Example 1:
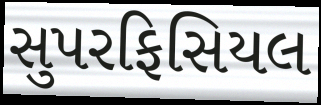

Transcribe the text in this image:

સુપરફિસિયલ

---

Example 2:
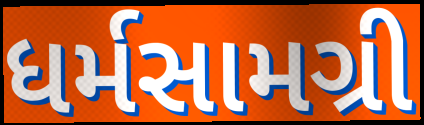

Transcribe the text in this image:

ધર્મસામગ્રી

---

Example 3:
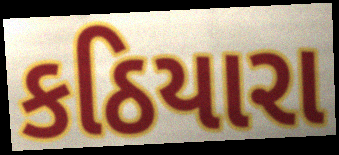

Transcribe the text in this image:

કઠિયારા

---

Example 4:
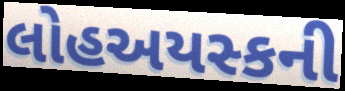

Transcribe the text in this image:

લોહઅયસ્કની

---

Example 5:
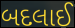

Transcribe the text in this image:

બદલાઈ